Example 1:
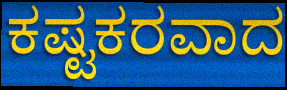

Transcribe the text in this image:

ಕಷ್ಟಕರವಾದ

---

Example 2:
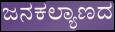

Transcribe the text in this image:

ಜನಕಲ್ಯಾಣದ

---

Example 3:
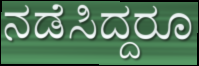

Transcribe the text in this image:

ನಡೆಸಿದ್ದರೂ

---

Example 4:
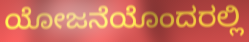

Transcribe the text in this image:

ಯೋಜನೆಯೊಂದರಲ್ಲಿ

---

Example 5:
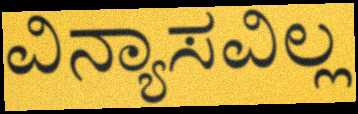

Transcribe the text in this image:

ವಿನ್ಯಾಸವಿಲ್ಲ